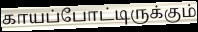
காயப்போட்டிருக்கும்